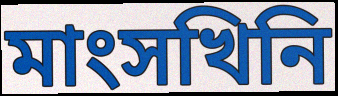
মাংসখিনি